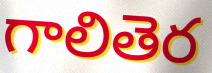
గాలితెర